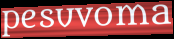
pesuvoma